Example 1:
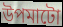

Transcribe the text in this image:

উপমাটো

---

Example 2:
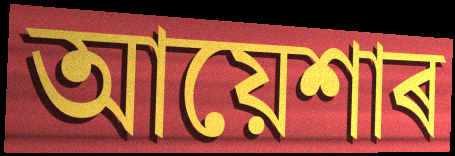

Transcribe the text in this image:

আয়েশাৰ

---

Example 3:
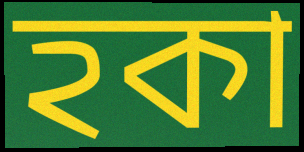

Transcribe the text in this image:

হকা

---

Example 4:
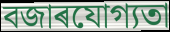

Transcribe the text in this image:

বজাৰযোগ্যতা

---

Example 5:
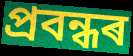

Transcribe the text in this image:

প্ৰবন্ধৰ